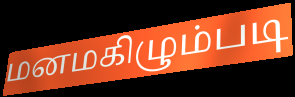
மனமகிழும்படி